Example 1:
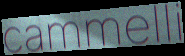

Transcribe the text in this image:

cammelli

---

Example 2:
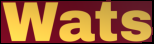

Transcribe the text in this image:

Wats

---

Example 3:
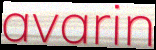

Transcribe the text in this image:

avarin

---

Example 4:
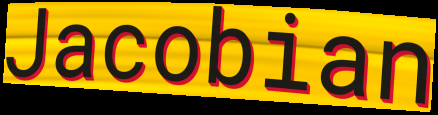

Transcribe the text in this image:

Jacobian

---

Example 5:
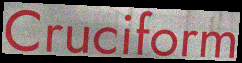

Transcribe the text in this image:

Cruciform